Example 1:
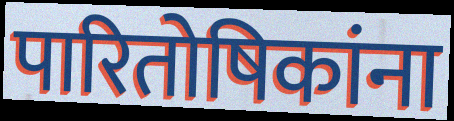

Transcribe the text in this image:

पारितोषिकांना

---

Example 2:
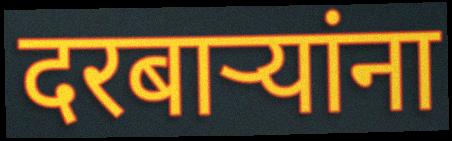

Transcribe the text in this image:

दरबाऱ्यांना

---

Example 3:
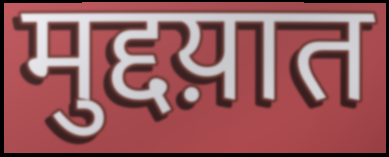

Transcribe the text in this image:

मुद्दय़ात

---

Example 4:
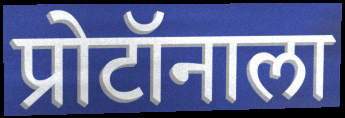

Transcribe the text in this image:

प्रोटॉनाला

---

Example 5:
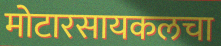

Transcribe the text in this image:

मोटारसायकलचा